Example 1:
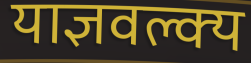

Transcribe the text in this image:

याज्ञवल्क्य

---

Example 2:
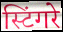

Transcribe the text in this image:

स्टिंगरे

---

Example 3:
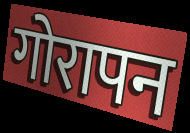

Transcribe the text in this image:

गोरापन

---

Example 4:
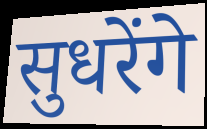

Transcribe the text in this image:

सुधरेंगे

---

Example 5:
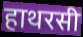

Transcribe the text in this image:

हाथरसी